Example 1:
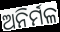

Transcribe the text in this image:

ଅନିର୍ମଳ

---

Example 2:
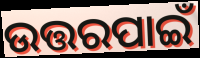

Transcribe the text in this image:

ଉତ୍ତରପାଇଁ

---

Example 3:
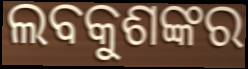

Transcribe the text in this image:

ଲବକୁଶଙ୍କର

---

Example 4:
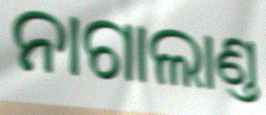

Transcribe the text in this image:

ନାଗାଲାଣ୍ତ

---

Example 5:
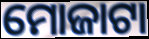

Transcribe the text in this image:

ମୋଜାଟା